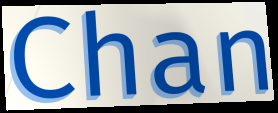
Chan